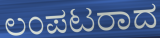
ಲಂಪಟರಾದ